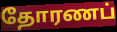
தோரணப்